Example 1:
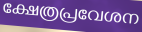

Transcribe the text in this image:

ക്ഷേത്രപ്രവേശന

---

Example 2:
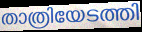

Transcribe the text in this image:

താത്രിയേടത്തി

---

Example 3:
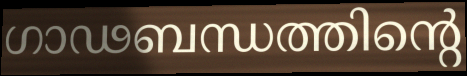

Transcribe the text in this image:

ഗാഢബന്ധത്തിന്റെ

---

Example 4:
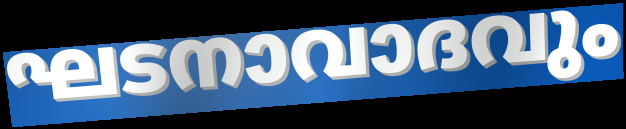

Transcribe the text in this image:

ഘടനാവാദവും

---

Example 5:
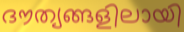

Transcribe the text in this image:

ദൗത്യങ്ങളിലായി